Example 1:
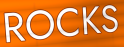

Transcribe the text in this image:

ROCKS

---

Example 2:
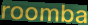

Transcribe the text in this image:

roomba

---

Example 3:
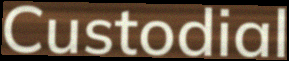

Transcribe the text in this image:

Custodial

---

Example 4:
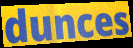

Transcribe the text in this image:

dunces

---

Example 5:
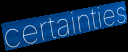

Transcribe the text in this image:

certainties